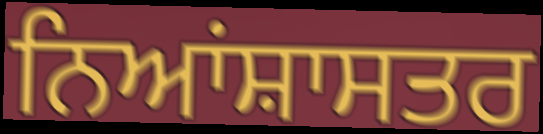
ਨਿਆਂਸ਼ਾਸਤਰ